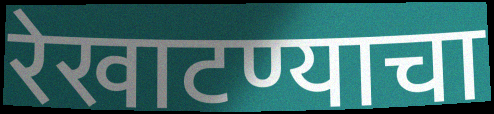
रेखाटण्याचा